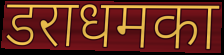
डराधमका